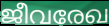
ജീവരേഖ